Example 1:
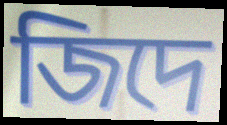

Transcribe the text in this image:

জিদে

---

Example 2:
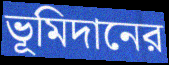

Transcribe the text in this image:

ভূমিদানের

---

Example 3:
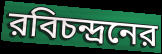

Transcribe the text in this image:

রবিচন্দ্রনের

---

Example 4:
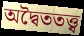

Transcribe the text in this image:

অদ্বৈততত্ত্ব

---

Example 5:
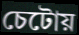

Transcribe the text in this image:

চেটোয়